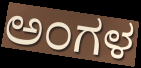
ಅಂಗಳ